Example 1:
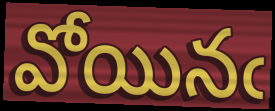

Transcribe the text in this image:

వోయినఁ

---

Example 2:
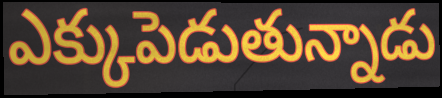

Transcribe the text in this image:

ఎక్కుపెడుతున్నాడు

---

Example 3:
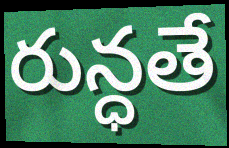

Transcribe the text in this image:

రున్ధతే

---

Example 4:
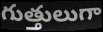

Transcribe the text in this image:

గుత్తులుగా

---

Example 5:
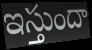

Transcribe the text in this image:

ఇస్తుందా